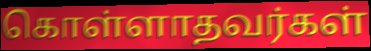
கொள்ளாதவர்கள்